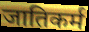
जातिकर्म